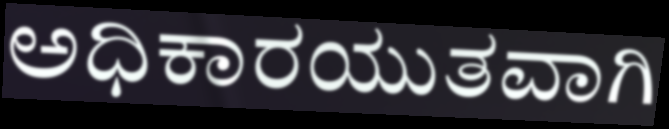
ಅಧಿಕಾರಯುತವಾಗಿ